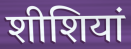
शीशियां